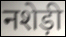
नशेड़ी